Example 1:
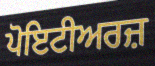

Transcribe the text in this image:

ਪੋਇਟੀਅਰਜ਼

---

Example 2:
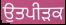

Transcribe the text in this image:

ਉਤਪੀੜਕ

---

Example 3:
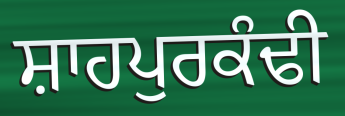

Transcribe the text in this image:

ਸ਼ਾਹਪੁਰਕੰਢੀ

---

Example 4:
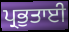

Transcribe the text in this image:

ਪ੍ਰਭੁਤਾਈ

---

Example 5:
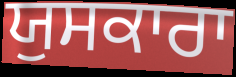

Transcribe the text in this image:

ਯੁਸਕਾਰਾ